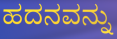
ಹದನವನ್ನು